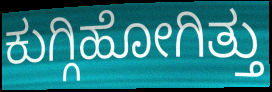
ಕುಗ್ಗಿಹೋಗಿತ್ತು